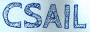
CSAIL